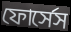
ফোর্সেস